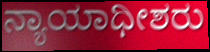
ನ್ಯಾಯಾಧೀಶರು